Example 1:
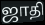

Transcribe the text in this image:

ஜாதி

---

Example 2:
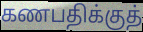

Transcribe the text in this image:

கணபதிக்குத்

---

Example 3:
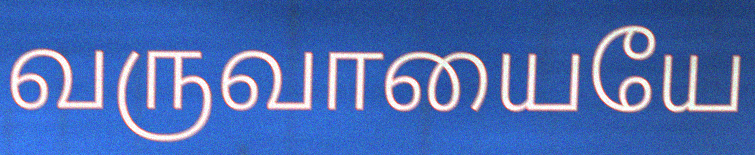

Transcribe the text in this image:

வருவாயையே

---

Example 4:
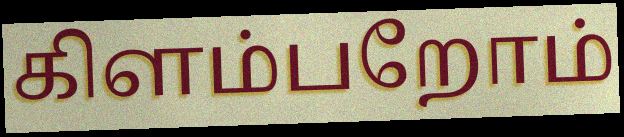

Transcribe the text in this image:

கிளம்பறோம்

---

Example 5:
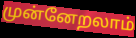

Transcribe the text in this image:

முன்னேறலாம்